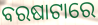
ବରଷାଟାରେ